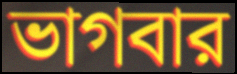
ভাগবার